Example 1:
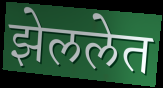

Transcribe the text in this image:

झेललेत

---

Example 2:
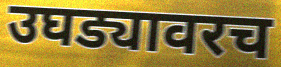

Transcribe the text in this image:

उघड्यावरच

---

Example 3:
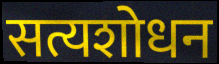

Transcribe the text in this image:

सत्यशोधन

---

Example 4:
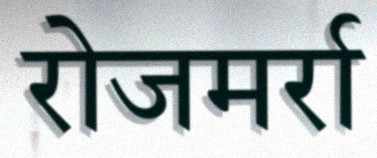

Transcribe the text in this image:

रोजमर्रा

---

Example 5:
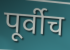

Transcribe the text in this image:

पूर्वीच